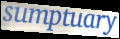
sumptuary